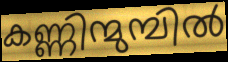
കണ്ണിന്മുമ്പിൽ